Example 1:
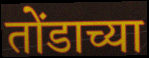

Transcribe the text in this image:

तोंडाच्या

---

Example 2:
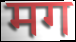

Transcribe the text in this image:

मग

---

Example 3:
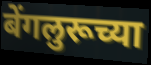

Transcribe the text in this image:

बेंगलुरूच्या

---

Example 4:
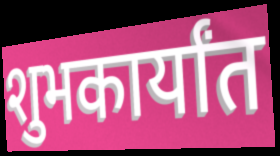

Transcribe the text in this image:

शुभकार्यांत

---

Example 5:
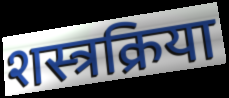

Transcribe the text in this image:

शस्त्रक्रिया